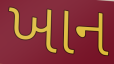
ખાન